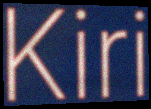
Kiri